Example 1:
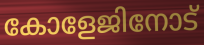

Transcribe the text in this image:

കോളേജിനോട്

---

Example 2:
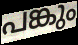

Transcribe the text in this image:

പങ്കും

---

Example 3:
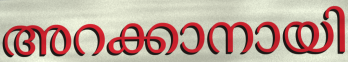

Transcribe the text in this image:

അറക്കാനായി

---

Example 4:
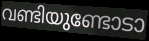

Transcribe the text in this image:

വണ്ടിയുണ്ടോടാ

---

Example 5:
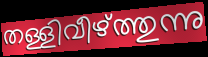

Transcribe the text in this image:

തള്ളിവീഴ്ത്തുന്നു